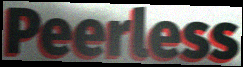
Peerless